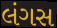
લંગસ